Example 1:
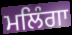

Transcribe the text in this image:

ਮਲਿੰਗਾ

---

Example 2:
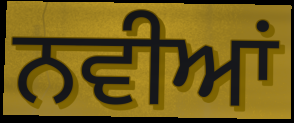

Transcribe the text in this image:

ਨਵੀਆਂ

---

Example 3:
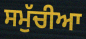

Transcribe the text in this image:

ਸਮੁੱਚੀਆ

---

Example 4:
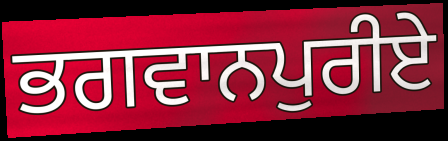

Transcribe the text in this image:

ਭਗਵਾਨਪੁਰੀਏ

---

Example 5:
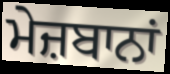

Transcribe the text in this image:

ਮੇਜ਼ਬਾਨਾਂ